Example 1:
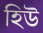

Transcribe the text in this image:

হিউ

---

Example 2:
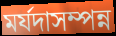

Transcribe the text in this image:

মৰ্যদাসম্পন্ন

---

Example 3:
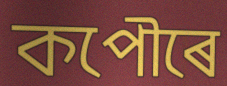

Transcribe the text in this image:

কপৌৰে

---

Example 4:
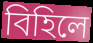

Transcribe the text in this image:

বিহিলে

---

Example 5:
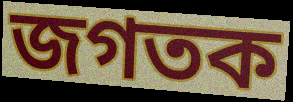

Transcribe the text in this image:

জগতক